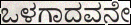
ಒಳಗಾದವನೇ